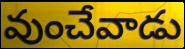
వుంచేవాడు